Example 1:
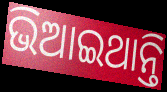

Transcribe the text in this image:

ଭିଆଇଥାନ୍ତି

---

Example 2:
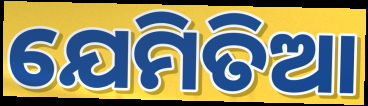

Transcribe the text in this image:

ଯେମିତିଆ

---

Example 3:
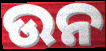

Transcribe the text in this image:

ଉନ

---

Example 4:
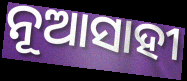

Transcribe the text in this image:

ନୂଆସାହୀ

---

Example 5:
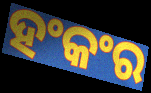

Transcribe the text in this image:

ହଂକଂର